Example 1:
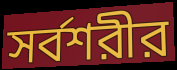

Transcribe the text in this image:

সর্বশরীর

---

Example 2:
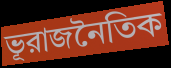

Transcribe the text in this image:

ভূরাজনৈতিক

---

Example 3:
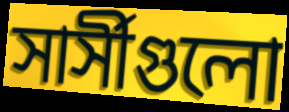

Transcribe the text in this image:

সার্সীগুলো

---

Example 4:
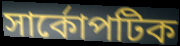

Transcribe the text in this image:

সার্কোপটিক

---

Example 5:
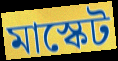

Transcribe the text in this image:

মাস্কেট